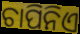
ଚାପିନିଏ